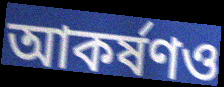
আকর্ষণও